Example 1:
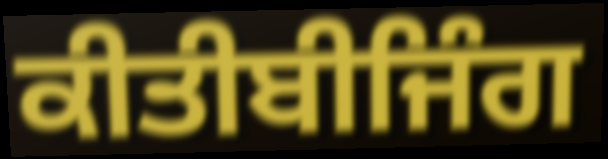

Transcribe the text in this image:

ਕੀਤੀਬੀਜਿੰਗ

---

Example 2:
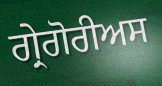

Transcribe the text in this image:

ਗ੍ਰੇਗੋਰੀਅਸ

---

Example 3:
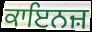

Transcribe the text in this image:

ਕਾਇਨਜ਼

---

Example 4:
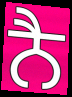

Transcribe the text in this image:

ਨੈ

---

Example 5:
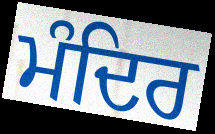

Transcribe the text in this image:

ਮੰਦਿਰ